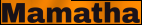
Mamatha